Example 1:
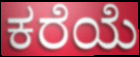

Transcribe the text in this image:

ಕರೆಯೆ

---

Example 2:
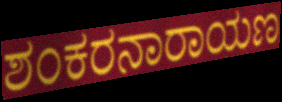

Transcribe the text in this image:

ಶಂಕರನಾರಾಯಣ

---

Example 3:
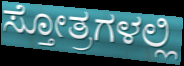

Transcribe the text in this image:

ಸ್ತೋತ್ರಗಳಲ್ಲಿ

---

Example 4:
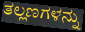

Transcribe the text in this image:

ತಲ್ಲಣಗಳನ್ನು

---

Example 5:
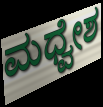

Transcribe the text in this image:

ಮಧ್ವೇಶ